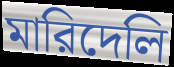
মারিদেলি